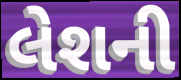
લેશની